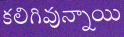
కలిగివున్నాయి